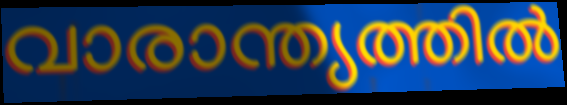
വാരാന്ത്യത്തിൽ